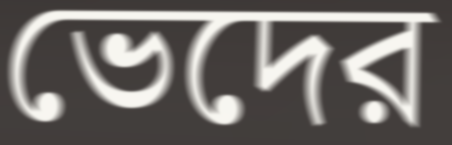
ভেদের